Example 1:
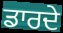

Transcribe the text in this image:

ਡਾਰਦੇ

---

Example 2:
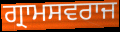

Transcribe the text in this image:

ਗ੍ਰਾਮਸਵਰਾਜ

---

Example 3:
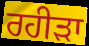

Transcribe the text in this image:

ਰਹੀੜਾ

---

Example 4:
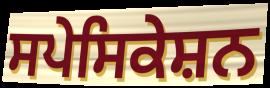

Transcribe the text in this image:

ਸਪੇਸਿਕੇਸ਼ਨ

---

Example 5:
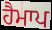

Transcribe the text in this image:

ਹੈਮਾਪ